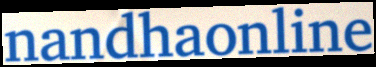
nandhaonline